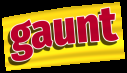
gaunt